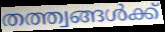
തത്ത്വങ്ങൾക്ക്